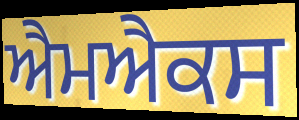
ਐਮਐਕਸ